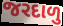
જરદાળુ